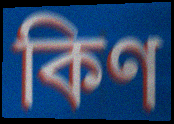
কিণ